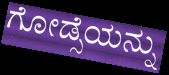
ಗೋಡ್ಸೆಯನ್ನು